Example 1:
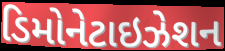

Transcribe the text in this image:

ડિમોનેટાઇઝેશન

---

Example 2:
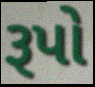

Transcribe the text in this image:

રૂપો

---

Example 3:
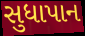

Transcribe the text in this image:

સુધાપાન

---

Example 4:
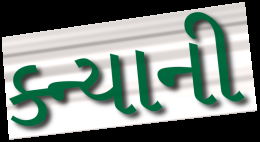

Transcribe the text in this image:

ક્ન્યાની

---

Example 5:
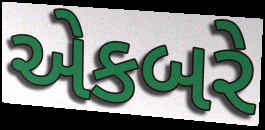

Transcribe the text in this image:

એકબરે